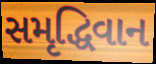
સમૃદ્ધિવાન